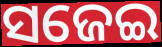
ସଜେଇ